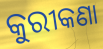
କୁରୀକଣା